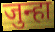
जुन्हा